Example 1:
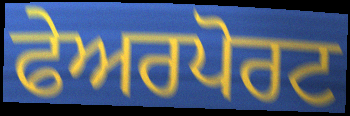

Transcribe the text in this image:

ਫੇਅਰਪੋਰਟ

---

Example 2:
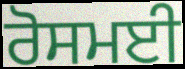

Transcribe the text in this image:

ਰੋਸਮਈ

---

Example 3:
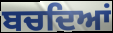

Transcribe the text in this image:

ਬਚਦਿਆਂ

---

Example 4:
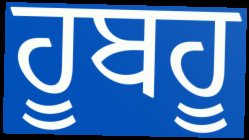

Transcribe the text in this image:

ਹੂਬਹੂ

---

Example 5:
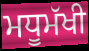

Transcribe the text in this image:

ਮਧੂਮੱਖੀ